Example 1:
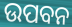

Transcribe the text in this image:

ଉପବନ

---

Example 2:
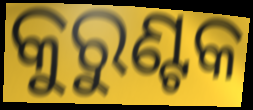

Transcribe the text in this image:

କୁରୁଣ୍ଟକ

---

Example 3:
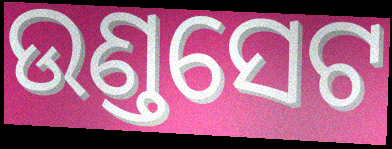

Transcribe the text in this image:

ଉଣ୍ଡସେଟ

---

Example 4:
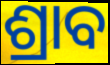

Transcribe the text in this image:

ଶ୍ରାବ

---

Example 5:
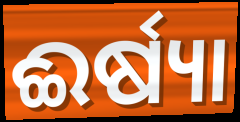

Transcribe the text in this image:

ଈର୍ଷ୍ୟା